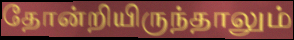
தோன்றியிருந்தாலும்